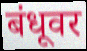
बंधूवर